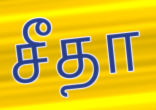
சீதா